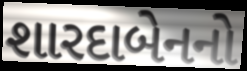
શારદાબેનનો